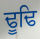
ਢੂਢਿ